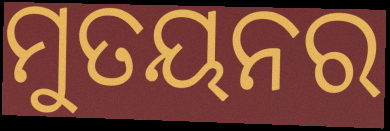
ମୁତୟନର